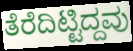
ತೆರೆದಿಟ್ಟಿದ್ದವು